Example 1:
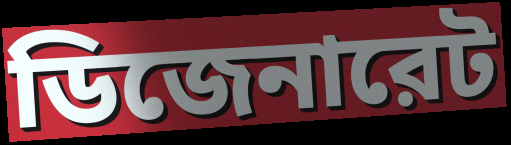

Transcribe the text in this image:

ডিজেনারেট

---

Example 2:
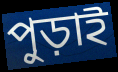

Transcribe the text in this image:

পুড়াই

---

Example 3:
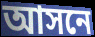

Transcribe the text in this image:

আসনে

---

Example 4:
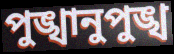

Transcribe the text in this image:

পুঙ্খানুপুঙ্খ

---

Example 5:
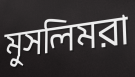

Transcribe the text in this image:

মুসলিমরা